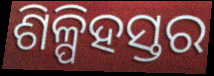
ଶିଳ୍ପିହସ୍ତର